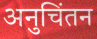
अनुचिंतन